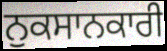
ਨੁਕਸਾਨਕਾਰੀ